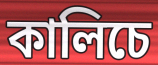
কালিচে